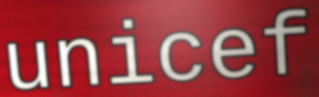
unicef